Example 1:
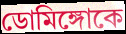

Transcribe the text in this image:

ডোমিঙ্গোকে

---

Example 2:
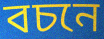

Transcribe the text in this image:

বচনে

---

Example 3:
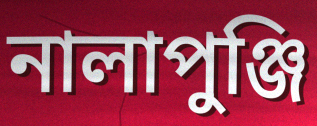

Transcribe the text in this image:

নালাপুঞ্জি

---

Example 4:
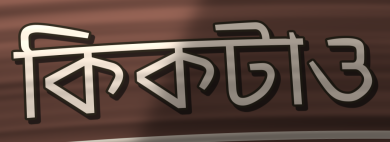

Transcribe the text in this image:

কিকটাও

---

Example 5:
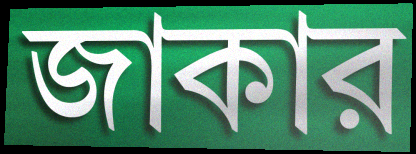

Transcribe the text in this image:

জাকার